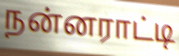
நன்னராட்டி